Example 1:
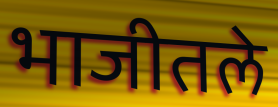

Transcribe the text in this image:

भाजीतले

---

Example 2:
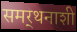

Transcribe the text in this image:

समर्थनाशी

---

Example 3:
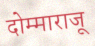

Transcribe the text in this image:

दोम्माराजू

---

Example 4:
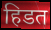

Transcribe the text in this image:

हिडत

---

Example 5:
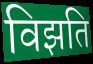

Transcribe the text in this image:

विझति